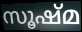
സൂഷ്മ